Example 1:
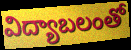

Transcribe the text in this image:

విద్యాబలంతో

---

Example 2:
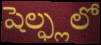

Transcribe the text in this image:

షెల్ఫ్లలో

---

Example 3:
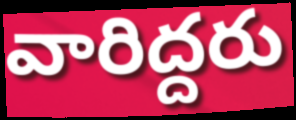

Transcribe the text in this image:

వారిద్దరు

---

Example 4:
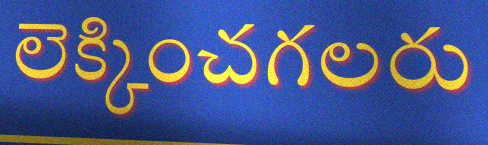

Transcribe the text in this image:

లెక్కించగలరు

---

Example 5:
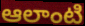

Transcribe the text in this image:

ఆలాంటి